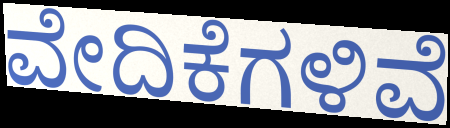
ವೇದಿಕೆಗಳಿವೆ